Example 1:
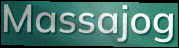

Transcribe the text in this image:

Massajog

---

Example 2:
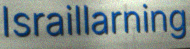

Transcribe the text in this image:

Israillarning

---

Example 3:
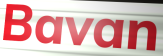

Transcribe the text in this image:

Bavan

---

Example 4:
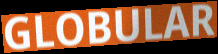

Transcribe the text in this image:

GLOBULAR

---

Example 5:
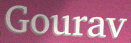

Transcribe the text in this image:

Gourav